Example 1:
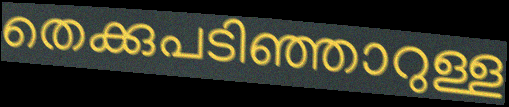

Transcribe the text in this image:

തെക്കുപടിഞ്ഞാറുള്ള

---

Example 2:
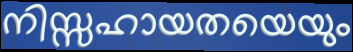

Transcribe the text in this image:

നിസ്സഹായതയെയും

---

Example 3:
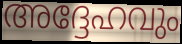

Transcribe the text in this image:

അദ്ദേഹവും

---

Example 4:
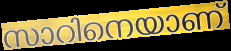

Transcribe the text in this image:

സാറിനെയാണ്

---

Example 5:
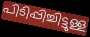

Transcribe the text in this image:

പിടിപ്പിച്ചിട്ടുള്ള